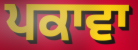
ਪਕਾਵਾ